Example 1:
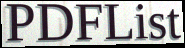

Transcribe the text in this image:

PDFList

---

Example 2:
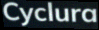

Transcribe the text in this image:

Cyclura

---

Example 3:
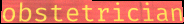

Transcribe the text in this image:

obstetrician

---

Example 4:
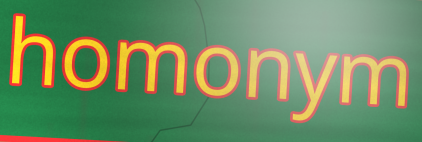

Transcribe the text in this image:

homonym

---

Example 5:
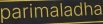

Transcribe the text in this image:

parimaladha